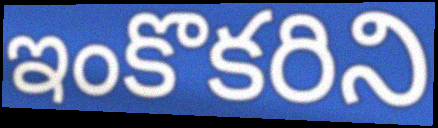
ఇంకొకరిని